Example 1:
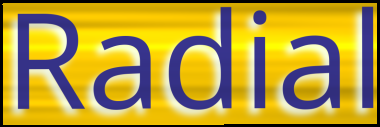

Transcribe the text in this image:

Radial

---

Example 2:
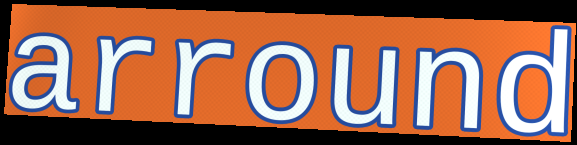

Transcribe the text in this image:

arround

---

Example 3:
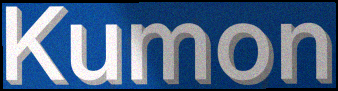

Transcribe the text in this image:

Kumon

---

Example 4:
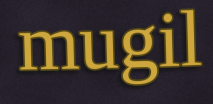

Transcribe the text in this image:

mugil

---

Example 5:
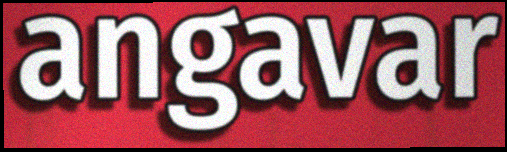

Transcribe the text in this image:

angavar